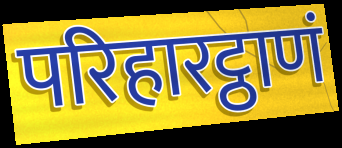
परिहारट्ठाणं